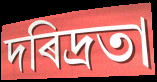
দৰিদ্ৰতা